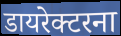
डायरेक्टरना